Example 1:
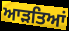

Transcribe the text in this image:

ਆੜਤਿਆਂ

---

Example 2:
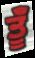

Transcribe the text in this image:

ਤੂੰਁ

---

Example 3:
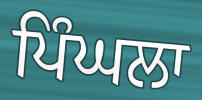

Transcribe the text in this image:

ਪਿੰਘਲਾ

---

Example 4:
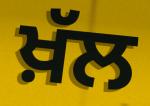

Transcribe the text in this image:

ਖ਼ੱਲ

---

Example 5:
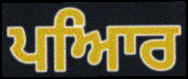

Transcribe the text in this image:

ਪਆਿਰ